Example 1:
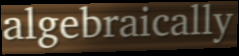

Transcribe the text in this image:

algebraically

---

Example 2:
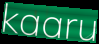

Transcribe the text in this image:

kaaru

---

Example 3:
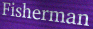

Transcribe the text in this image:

Fisherman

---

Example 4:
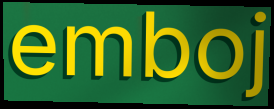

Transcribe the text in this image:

emboj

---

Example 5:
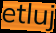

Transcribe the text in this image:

etluj